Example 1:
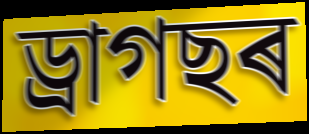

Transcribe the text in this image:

ড্ৰাগছৰ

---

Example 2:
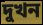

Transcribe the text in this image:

দুখন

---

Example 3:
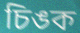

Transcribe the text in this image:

চিঙক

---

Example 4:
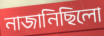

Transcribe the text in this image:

নাজানিছিলো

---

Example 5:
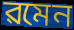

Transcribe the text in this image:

ৱমেন